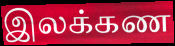
இலக்கண